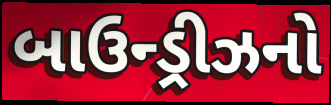
બાઉન્ડ્રીઝનો